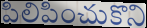
పిలిపించుకొని